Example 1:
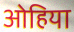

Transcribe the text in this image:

ओहिया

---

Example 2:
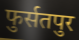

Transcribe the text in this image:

फुर्सतपुर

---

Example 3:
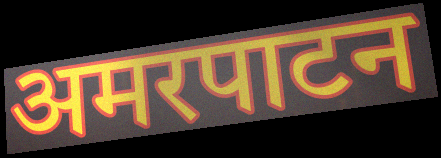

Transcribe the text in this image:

अमरपाटन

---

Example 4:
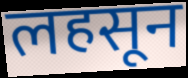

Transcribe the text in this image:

लहसून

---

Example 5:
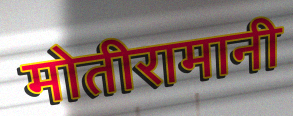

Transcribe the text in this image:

मोतीरामानी